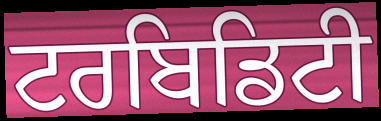
ਟਰਬਿਡਿਟੀ